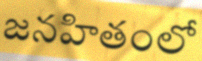
జనహితంలో